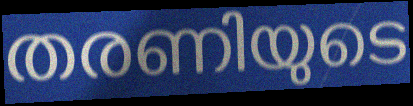
തരണിയുടെ